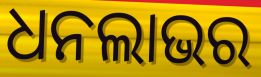
ଧନଲାଭର